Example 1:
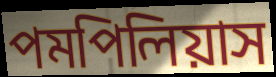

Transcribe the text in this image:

পমপিলিয়াস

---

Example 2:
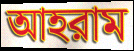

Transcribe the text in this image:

আহরাম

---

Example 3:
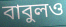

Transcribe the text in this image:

বাবুলও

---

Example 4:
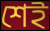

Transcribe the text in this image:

শেই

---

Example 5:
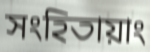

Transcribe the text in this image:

সংহিতায়াং